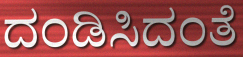
ದಂಡಿಸಿದಂತೆ